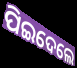
ପିଇଦେଲେ